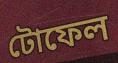
টোফেল